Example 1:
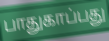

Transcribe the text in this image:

பாதுகாப்பது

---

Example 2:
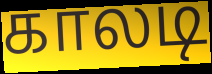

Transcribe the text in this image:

காலடி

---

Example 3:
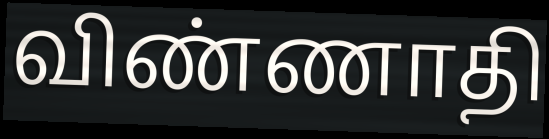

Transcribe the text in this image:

விண்ணாதி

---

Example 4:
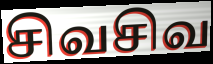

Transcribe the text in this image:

சிவசிவ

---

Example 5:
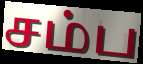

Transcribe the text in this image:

சம்ப